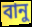
বানু